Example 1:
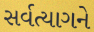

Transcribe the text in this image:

સર્વત્યાગને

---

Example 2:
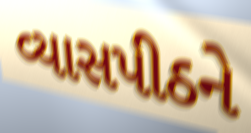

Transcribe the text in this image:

વ્યાસપીઠને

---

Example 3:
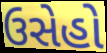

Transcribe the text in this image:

ઉસેહો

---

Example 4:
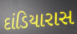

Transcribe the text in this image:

દાંડિયારાસ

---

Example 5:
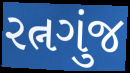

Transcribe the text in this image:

રત્નગુંજ